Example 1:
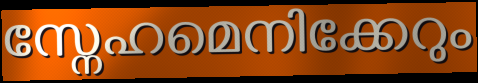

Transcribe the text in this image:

സ്നേഹമെനിക്കേറും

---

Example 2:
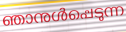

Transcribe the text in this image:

ഞാനുൾപ്പെടുന്ന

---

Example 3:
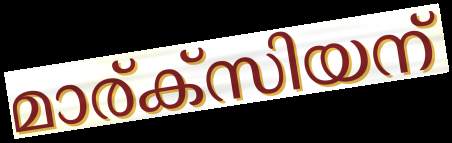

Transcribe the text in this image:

മാര്ക്സിയന്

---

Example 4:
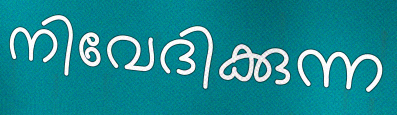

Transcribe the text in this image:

നിവേദിക്കുന്ന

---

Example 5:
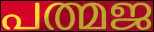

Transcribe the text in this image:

പത്മജ